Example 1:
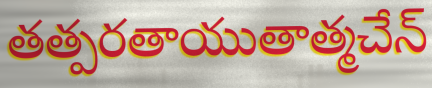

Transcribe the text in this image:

తత్పరతాయుతాత్మచేన్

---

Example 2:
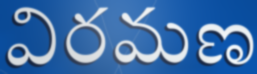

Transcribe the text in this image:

విరమణ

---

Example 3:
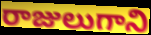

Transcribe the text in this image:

రాజులుగాని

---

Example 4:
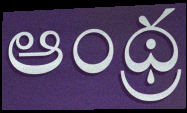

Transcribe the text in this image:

ఆంథ్ర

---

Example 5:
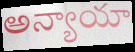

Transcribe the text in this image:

అన్యాయా